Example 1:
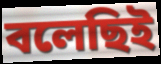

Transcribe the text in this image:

বলেছিই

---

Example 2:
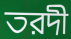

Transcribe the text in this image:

তরদী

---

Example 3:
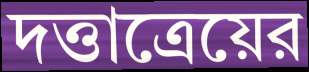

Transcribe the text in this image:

দত্তাত্রেয়ের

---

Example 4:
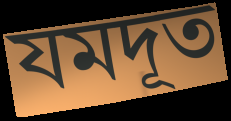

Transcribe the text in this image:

যমদূত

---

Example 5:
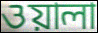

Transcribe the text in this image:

ওয়ালা